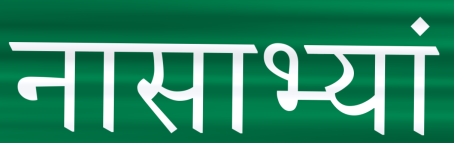
नासाभ्यां